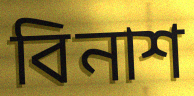
বিনাশ